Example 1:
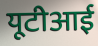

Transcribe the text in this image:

यूटीआई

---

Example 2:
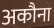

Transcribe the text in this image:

अकौना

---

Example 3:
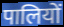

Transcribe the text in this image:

पालियों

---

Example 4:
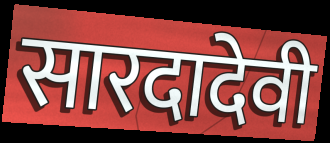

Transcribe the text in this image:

सारदादेवी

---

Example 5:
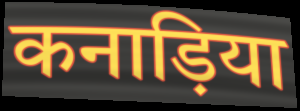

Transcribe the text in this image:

कनाड़िया